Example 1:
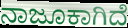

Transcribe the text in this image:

ನಾಜೂಕಾಗಿದೆ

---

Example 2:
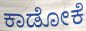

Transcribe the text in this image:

ಕಾಡೋಕೆ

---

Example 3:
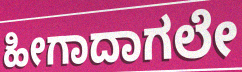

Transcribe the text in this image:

ಹೀಗಾದಾಗಲೇ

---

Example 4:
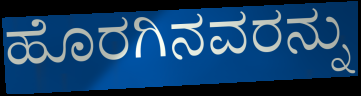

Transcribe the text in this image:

ಹೊರಗಿನವರನ್ನು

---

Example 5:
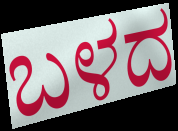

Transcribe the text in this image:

ಬಳದ